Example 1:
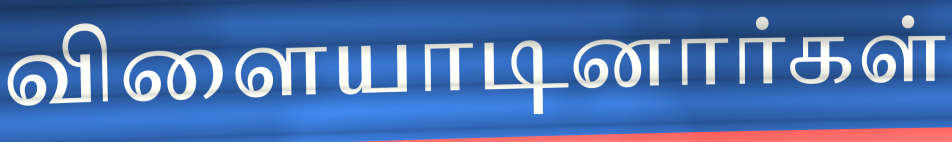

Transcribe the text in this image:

விளையாடினார்கள்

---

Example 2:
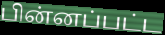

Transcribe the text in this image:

பின்னப்பட்ட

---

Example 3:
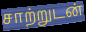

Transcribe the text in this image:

சாற்றுடன்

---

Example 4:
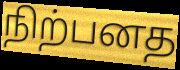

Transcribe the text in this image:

நிற்பனத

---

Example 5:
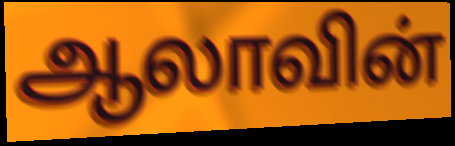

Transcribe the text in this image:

ஆலாவின்